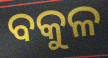
ବକୁଳ